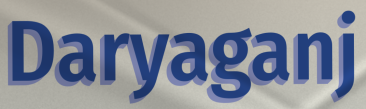
Daryaganj